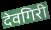
देवगिरी